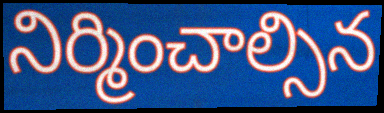
నిర్మించాల్సిన